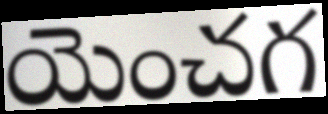
యెంచగ